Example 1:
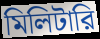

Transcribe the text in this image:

মিলিটারি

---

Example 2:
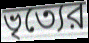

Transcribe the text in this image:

ভৃত্যের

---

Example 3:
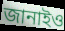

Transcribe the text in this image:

জানাইও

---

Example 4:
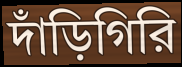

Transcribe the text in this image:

দাঁড়িগিরি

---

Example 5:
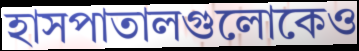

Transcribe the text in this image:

হাসপাতালগুলোকেও